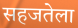
सहजतेला